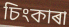
চিংকাৰা